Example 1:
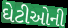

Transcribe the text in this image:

ઘેટીઓની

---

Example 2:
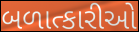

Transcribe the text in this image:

બળાત્કારીઓ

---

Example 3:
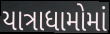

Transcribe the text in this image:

યાત્રાધામોમાં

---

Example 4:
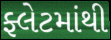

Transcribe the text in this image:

ફ્લેટમાંથી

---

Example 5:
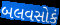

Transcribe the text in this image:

બલવસોકં